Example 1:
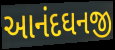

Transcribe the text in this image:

આનંદઘનજી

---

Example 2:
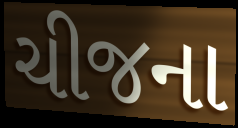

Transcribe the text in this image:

ચીજના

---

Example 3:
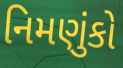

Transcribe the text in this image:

નિમણુંકો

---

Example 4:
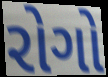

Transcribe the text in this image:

રોગો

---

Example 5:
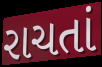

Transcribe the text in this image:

રાચતાં